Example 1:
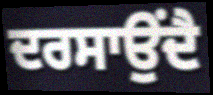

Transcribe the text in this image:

ਦਰਸਾਉਂਦੈ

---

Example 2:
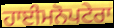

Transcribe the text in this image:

ਹਾਈਮਨੋਪਟੇਰਾ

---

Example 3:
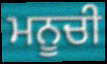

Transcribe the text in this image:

ਮਨੂਚੀ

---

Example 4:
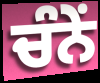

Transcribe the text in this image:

ਚੰਨੇਂ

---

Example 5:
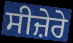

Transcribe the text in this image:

ਸੀਜ਼ੇਰੇ